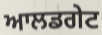
ਆਲਡਗੇਟ